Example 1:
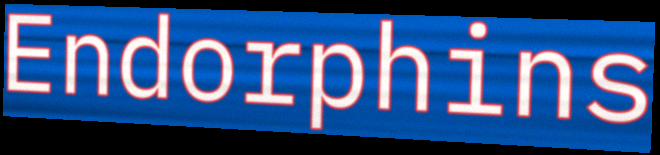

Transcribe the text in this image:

Endorphins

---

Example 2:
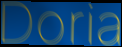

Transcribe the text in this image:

Doria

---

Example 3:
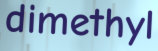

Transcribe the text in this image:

dimethyl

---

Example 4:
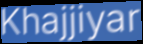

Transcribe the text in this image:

Khajjiyar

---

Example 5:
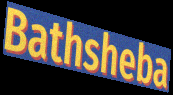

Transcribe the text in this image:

Bathsheba